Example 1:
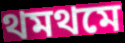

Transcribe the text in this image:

থমথমে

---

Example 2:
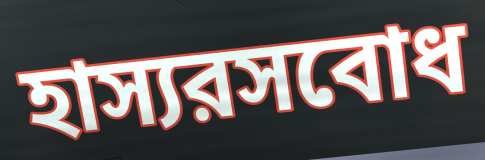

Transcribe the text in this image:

হাস্যরসবোধ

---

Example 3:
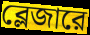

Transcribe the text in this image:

ব্লেজারে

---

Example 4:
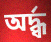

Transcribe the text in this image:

অর্দ্ধ্ব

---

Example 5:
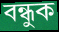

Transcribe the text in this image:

বন্ধুক